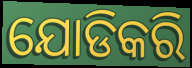
ଯୋଡିକରି